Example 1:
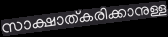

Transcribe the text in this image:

സാക്ഷാത്കരിക്കാനുള്ള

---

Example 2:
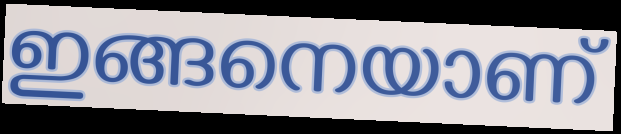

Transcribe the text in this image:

ഇങ്ങനെയാണ്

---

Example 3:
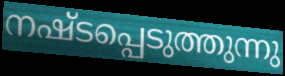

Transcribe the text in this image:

നഷ്ടപ്പെടുത്തുന്നു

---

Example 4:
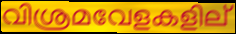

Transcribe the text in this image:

വിശ്രമവേളകളില്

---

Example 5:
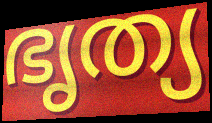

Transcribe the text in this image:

ഭൃത്യ